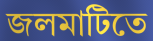
জলমাটিতে